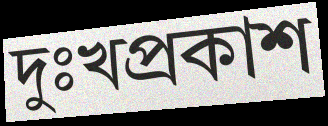
দুঃখপ্রকাশ